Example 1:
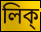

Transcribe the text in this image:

লিক্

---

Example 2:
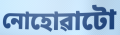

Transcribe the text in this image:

নোহোৱাটো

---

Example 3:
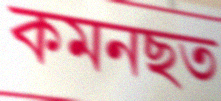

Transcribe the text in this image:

কমনছত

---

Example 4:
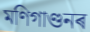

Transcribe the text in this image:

মণিগাণ্ডনৰ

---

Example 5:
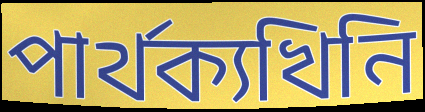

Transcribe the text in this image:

পাৰ্থক্যখিনি